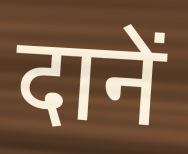
दानें